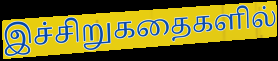
இச்சிறுகதைகளில்